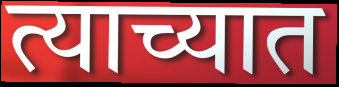
त्याच्यात